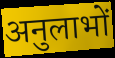
अनुलाभों